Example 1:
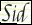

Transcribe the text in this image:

Sid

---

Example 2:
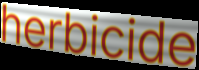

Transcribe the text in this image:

herbicide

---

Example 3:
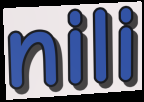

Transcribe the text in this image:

nili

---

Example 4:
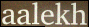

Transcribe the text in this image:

aalekh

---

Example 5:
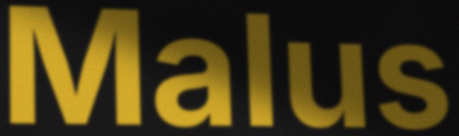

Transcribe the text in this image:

Malus